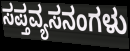
ಸಪ್ತವ್ಯಸನಂಗಳು